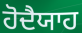
ਹੋਦੈਯਾਹ